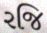
રજિ